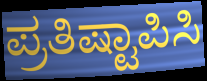
ಪ್ರತಿಷ್ಟಾಪಿಸಿ